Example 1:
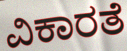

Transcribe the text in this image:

ವಿಕಾರತೆ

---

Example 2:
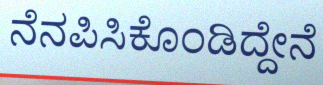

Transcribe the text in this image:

ನೆನಪಿಸಿಕೊಂಡಿದ್ದೇನೆ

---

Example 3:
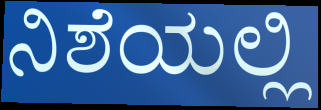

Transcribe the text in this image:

ನಿಶೆಯಲ್ಲಿ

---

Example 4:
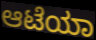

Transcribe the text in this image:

ಆಟೆಯಾ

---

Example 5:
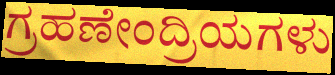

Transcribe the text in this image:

ಗ್ರಹಣೇಂದ್ರಿಯಗಳು